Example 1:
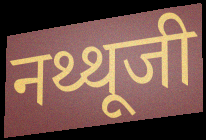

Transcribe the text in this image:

नथ्थूजी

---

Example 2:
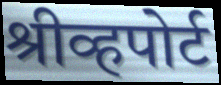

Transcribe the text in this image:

श्रीव्हपोर्ट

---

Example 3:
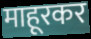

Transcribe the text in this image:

माहूरकर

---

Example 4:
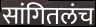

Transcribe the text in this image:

सांगितलंच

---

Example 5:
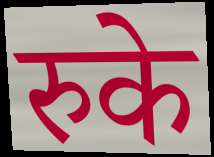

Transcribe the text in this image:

रुके